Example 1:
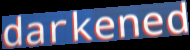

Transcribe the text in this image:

darkened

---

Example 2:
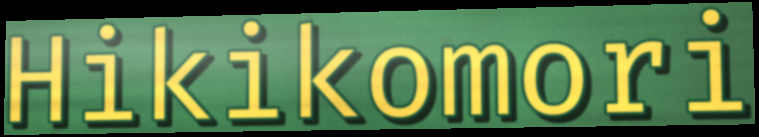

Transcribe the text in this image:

Hikikomori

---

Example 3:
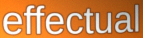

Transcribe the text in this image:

effectual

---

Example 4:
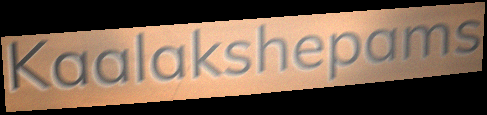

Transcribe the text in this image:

Kaalakshepams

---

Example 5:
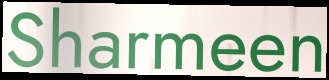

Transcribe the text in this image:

Sharmeen